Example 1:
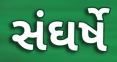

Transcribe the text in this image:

સંઘર્ષે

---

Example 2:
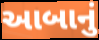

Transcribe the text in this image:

આબાનું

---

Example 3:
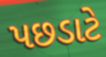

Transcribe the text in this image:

પછડાટે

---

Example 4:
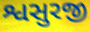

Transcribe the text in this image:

શ્વસુરજી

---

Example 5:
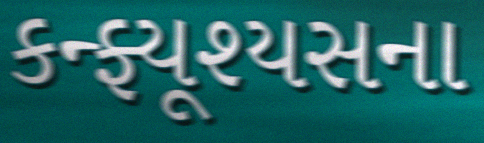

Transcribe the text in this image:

કન્ફ્યૂશ્યસના